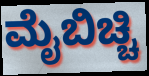
ಮೈಬಿಚ್ಚಿ